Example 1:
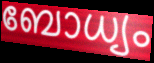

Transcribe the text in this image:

ബോധ്യം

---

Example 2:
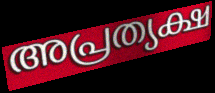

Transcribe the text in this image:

അപ്രത്യക്ഷ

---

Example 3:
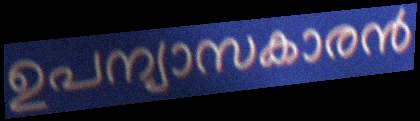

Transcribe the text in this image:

ഉപന്യാസകാരൻ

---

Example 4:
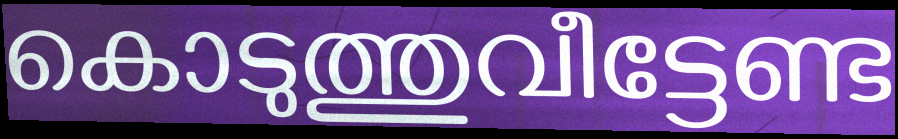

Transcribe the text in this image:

കൊടുത്തുവീട്ടേണ്ട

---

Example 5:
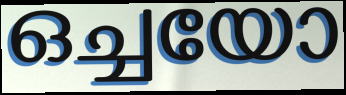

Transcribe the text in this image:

ഒച്ചയോ